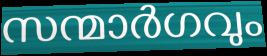
സന്മാർഗവും